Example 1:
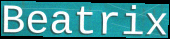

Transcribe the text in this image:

Beatrix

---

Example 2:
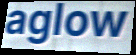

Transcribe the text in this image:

aglow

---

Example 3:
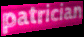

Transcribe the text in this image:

patrician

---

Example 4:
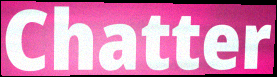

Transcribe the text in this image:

Chatter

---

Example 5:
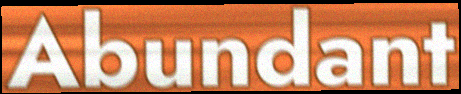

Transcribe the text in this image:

Abundant